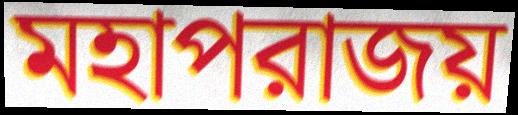
মহাপরাজয়